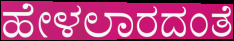
ಹೇಳಲಾರದಂತೆ